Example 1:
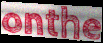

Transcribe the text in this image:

onthe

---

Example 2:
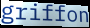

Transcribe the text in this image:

griffon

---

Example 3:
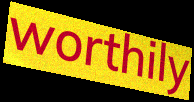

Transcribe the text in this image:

worthily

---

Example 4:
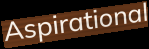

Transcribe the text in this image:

Aspirational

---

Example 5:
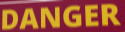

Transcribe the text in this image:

DANGER